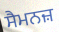
ਸੈਮਨਜ਼